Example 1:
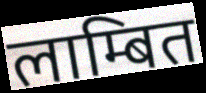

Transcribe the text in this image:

लाम्बित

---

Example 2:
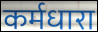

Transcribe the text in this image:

कर्मधारा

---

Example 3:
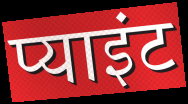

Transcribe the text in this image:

प्याइंट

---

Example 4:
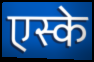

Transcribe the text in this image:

एस्के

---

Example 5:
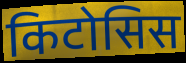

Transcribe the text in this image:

किटोसिस